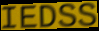
IEDSS